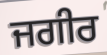
ਜਗੀਰ